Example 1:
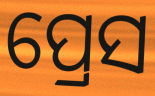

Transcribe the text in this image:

ପ୍ରେସ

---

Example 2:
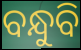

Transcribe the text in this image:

ବନ୍ଧୁବି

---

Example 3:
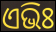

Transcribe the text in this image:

ଏଭିଃ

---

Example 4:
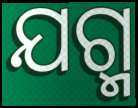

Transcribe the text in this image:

ଯଗ୍ମ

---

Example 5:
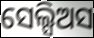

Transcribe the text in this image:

ସେଲ୍ସିଅସ